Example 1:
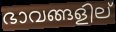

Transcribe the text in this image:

ഭാവങ്ങളില്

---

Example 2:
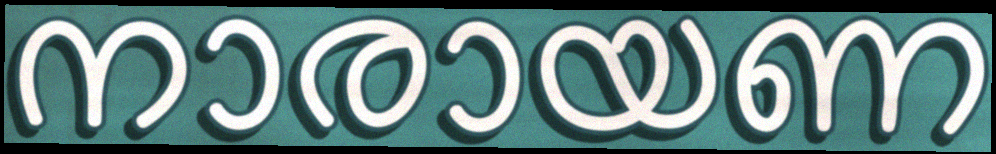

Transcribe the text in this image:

നാരായണ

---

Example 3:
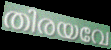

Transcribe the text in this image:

തിരയവേ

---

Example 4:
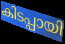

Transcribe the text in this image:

കിടപ്പായി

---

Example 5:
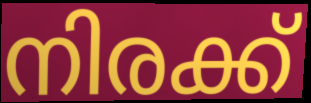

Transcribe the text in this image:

നിരക്ക്